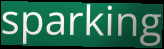
sparking